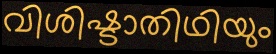
വിശിഷ്ടാതിഥിയും